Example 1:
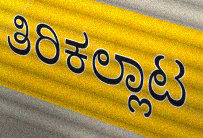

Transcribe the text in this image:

ತಿರಿಕಲ್ಲಾಟ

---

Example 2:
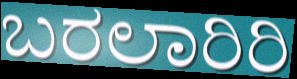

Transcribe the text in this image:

ಬರಲಾರಿರಿ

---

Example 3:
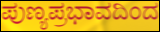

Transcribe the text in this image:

ಪುಣ್ಯಪ್ರಭಾವದಿಂದ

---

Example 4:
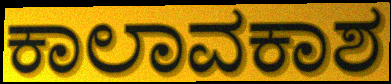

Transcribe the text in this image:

ಕಾಲಾವಕಾಶ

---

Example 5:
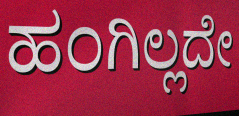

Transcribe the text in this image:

ಹಂಗಿಲ್ಲದೇ